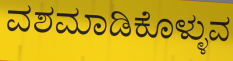
ವಶಮಾಡಿಕೊಳ್ಳುವ